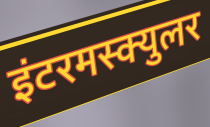
इंटरमस्क्युलर